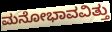
ಮನೋಭಾವವಿತ್ತು